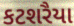
કટશરૈયા